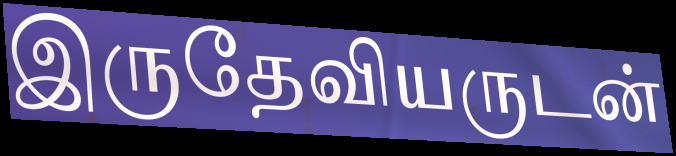
இருதேவியருடன்